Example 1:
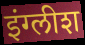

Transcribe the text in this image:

इंग्लीश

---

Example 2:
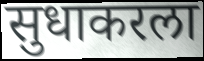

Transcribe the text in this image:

सुधाकरला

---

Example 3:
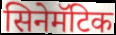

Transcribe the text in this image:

सिनेमॅटिक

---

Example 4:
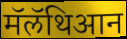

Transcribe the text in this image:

मॅलॅथिआन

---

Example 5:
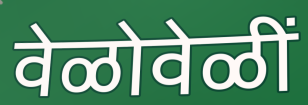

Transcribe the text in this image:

वेळोवेळीं